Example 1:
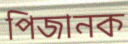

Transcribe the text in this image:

পিজানক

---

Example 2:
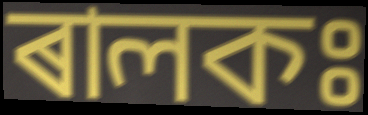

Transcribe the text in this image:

ৰালকঃ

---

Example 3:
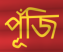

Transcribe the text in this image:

পূঁজি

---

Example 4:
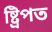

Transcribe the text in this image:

ষ্ট্ৰিপত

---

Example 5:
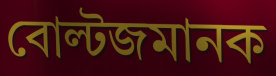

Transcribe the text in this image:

বোল্টজমানক